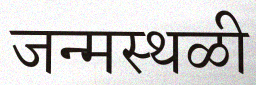
जन्मस्थळी